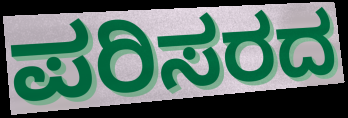
ಪರಿಸರದ